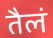
तैलं